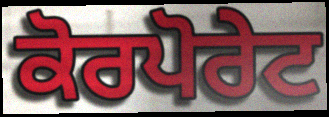
ਕੋਰਪੋਰੇਟ